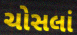
ચોસલાં